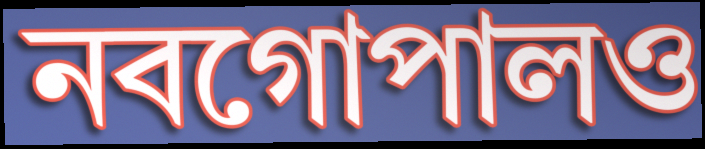
নবগোপালও